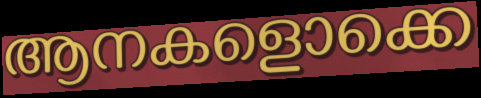
ആനകളൊക്കെ